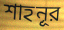
শাহনূর